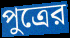
পুত্রের